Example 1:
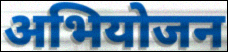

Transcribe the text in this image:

अभियोजन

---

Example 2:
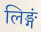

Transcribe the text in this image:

लिङ्गं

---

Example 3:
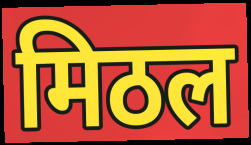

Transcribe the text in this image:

मिठल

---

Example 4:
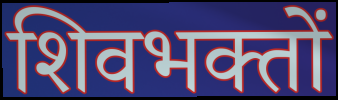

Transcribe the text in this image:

शिवभक्तों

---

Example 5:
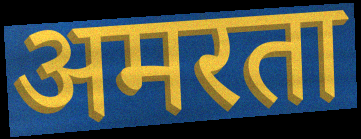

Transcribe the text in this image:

अमरता